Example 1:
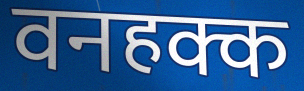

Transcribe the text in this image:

वनहक्क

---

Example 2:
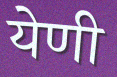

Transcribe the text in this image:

येणी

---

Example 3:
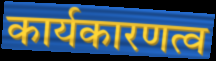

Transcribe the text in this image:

कार्यकारणत्व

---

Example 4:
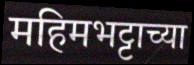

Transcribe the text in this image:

महिमभट्टाच्या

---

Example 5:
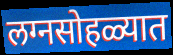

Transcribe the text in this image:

लग्नसोहळ्यात